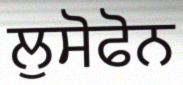
ਲੁਸੋਫੋਨ